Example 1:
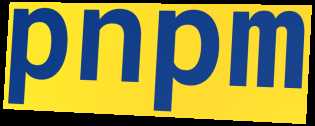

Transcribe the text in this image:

pnpm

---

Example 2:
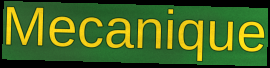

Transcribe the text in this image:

Mecanique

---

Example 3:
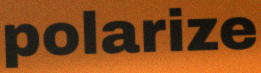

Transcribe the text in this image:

polarize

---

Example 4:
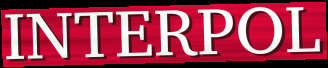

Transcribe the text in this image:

INTERPOL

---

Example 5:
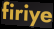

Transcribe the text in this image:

firiye